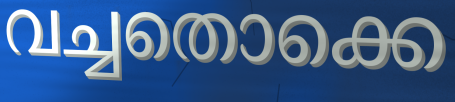
വച്ചതൊക്കെ